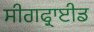
ਸੀਗਫ੍ਰਾਈਡ